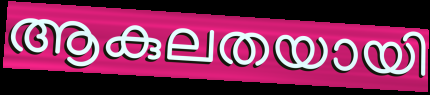
ആകുലതയായി